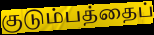
குடும்பத்தைப்